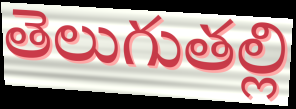
తెలుగుతల్లి